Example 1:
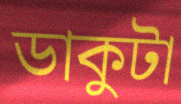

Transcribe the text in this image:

ডাকুটা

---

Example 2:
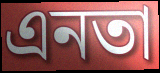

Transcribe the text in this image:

এনতা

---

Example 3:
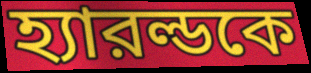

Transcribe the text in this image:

হ্যারল্ডকে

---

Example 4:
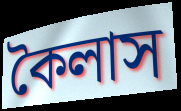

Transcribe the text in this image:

কৈলাস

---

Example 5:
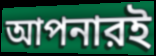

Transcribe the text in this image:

আপনারই